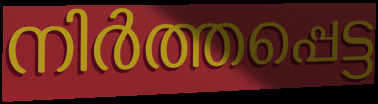
നിർത്തപ്പെട്ട